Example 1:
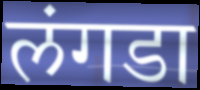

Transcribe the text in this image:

लंगडा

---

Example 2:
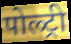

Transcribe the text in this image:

पोल्ट्री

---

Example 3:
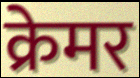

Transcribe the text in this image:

क्रेमर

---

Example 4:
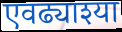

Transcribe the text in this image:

एवढ्याश्या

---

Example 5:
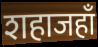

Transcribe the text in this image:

शहाजहाँ